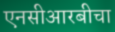
एनसीआरबीचा